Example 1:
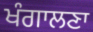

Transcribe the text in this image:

ਖੰਗਾਲਣਾ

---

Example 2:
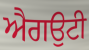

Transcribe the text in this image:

ਐਗਉਟੀ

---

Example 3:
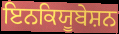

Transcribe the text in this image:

ਇਨਕਿਯੂਬੇਸ਼ਨ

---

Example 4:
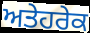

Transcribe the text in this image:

ਅਤੇਹਰੇਕ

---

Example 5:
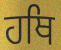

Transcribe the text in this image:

ਹਥਿ